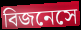
বিজনেসে